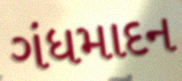
ગંધમાદન